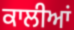
ਕਾਲੀਆਂ